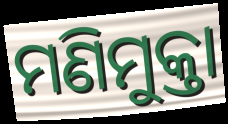
ମଣିମୁକ୍ତା